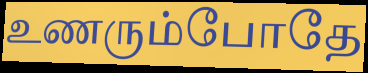
உணரும்போதே